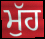
ਮੁੱਹ